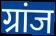
ग्रांज